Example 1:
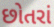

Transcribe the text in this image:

છોતરાં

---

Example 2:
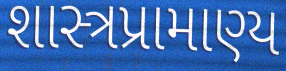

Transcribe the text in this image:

શાસ્ત્રપ્રામાણ્ય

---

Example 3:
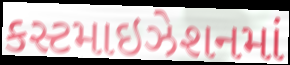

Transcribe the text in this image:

કસ્ટમાઇઝેશનમાં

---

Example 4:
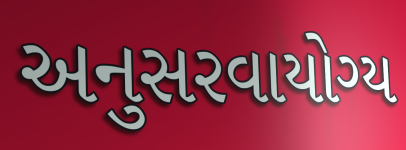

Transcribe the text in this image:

અનુસરવાયોગ્ય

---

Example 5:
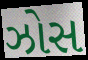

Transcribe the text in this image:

ઝોસ